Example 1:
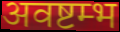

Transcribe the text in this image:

अवष्टम्भ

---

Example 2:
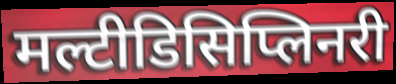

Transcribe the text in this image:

मल्टीडिसिप्लिनरी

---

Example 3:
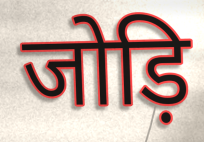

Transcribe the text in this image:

जोड़ि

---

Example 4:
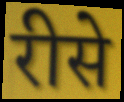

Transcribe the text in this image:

रीसे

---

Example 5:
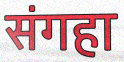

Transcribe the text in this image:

संगहा